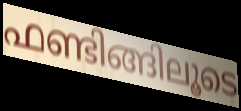
ഫണ്ടിങ്ങിലൂടെ